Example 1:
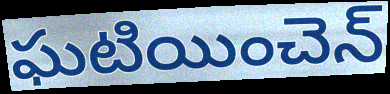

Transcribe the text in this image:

ఘటియించెన్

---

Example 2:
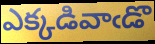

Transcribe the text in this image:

ఎక్కడివాఁడొ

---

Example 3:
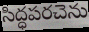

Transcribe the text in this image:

సిద్ధపరచెను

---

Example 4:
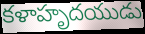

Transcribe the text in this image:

కళాహృదయుడు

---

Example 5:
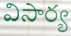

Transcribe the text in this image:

విసార్య